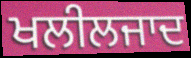
ਖਲੀਲਜਾਦ